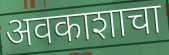
अवकाशाचा